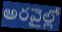
అరవైల్లో